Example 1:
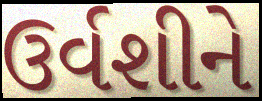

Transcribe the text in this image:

ઉર્વશીને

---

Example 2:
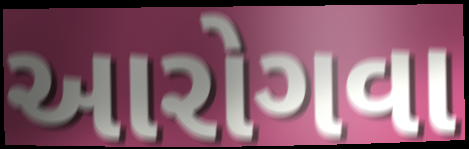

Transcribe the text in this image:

આરોગવા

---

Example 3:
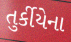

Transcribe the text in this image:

તુર્કીયેના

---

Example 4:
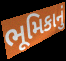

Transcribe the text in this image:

ભૂમિકાનું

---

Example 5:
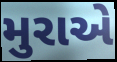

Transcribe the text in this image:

મુરાએ